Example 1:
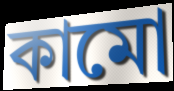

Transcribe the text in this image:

কামো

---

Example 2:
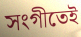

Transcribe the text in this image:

সংগীতেই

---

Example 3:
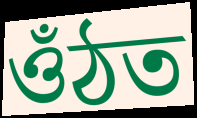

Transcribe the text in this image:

ওঁঠত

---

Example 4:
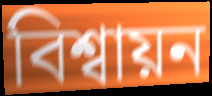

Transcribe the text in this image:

বিশ্বায়ন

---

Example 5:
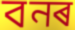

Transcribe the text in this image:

বনৰ